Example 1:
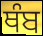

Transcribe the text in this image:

ਥੰਬ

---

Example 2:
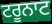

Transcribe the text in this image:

ਟਰੂਨਾਟ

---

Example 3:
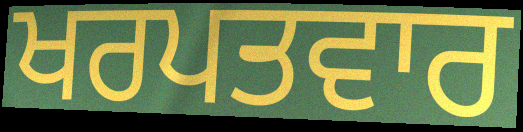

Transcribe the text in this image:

ਖਰਪਤਵਾਰ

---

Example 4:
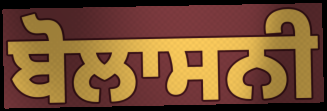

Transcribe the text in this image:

ਬੋਲਾਸਨੀ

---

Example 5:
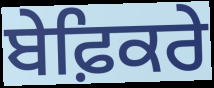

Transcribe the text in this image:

ਬੇਫ਼ਿਕਰੇ